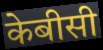
केबीसी